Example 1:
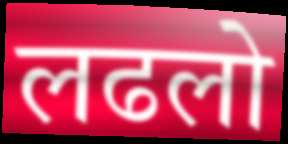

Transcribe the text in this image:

लढलो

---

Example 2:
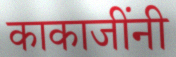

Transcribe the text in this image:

काकाजींनी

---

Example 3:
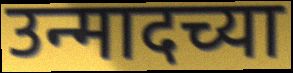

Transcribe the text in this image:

उन्मादच्या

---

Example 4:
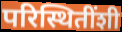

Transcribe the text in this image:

परिस्थितींशी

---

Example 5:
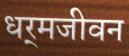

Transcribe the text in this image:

धर्मजीवन